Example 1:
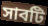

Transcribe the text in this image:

সাবটি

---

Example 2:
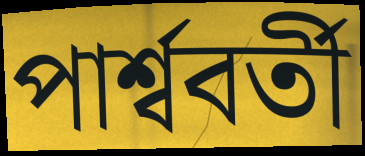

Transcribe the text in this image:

পাৰ্শ্ববৰ্তী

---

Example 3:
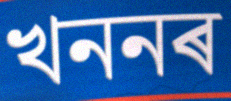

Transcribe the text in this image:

খননৰ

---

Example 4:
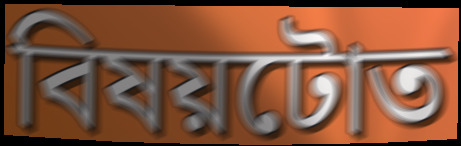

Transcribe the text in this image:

বিষয়টোত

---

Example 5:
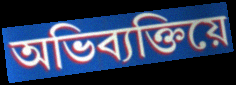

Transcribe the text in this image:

অভিব্যক্তিয়ে